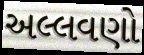
અલ્લવણો